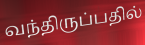
வந்திருப்பதில்